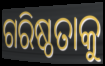
ଗରିଷ୍ଠତାକୁ